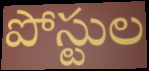
పోస్టుల